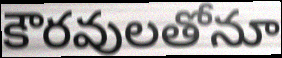
కౌరవులతోనూ